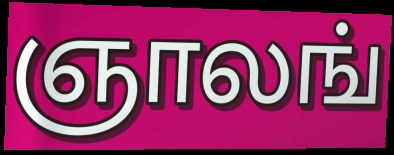
ஞாலங்